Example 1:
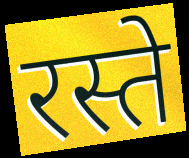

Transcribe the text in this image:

रस्ते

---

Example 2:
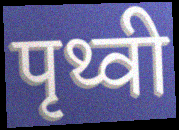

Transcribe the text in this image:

पृथ्वी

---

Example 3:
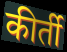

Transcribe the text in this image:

कीर्ती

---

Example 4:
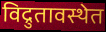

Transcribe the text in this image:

विद्रुतावस्थेत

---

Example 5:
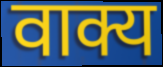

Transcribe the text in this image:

वाक्य